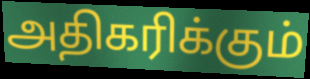
அதிகரிக்கும்